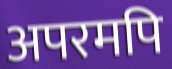
अपरमपि